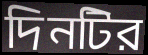
দিনটির